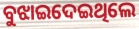
ବୁଝାଇଦେଇଥିଲେ